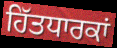
ਹਿੱਤਧਾਰਕਾਂ